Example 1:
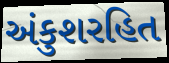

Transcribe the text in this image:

અંકુશરહિત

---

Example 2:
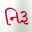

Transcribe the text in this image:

નિરૂ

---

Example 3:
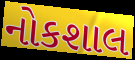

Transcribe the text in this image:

નોકશાલ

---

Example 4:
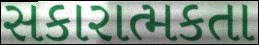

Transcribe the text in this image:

સકારાત્મકતા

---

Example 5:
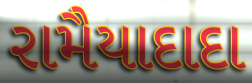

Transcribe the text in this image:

રામૈયાદાદા